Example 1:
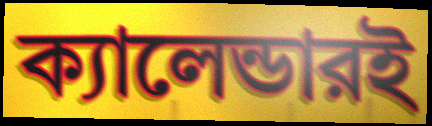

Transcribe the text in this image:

ক্যালেন্ডারই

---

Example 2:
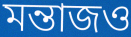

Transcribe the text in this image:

মন্তাজও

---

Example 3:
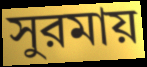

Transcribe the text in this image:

সুরমায়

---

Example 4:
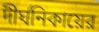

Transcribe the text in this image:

দীর্ঘনিকায়ের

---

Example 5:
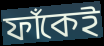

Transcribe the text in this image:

ফাঁকেই